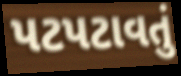
પટપટાવતું